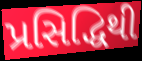
પ્રસિદ્ધિથી